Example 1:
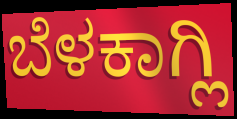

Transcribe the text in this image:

ಬೆಳಕಾಗ್ಲಿ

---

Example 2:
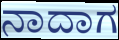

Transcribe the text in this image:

ನಾದಾಗ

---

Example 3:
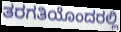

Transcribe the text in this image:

ತರಗತಿಯೊಂದರಲ್ಲಿ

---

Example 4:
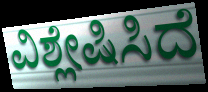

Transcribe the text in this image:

ವಿಶ್ಲೇಷಿಸಿದೆ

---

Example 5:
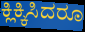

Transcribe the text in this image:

ಕ್ಲಿಕ್ಕಿಸಿದರೂ